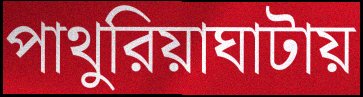
পাথুরিয়াঘাটায়